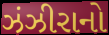
ઝંઝીરાનો